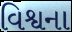
વિશ્વના